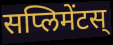
सप्लिमेंटस्